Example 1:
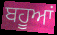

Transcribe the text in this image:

ਬਹੂਆਂ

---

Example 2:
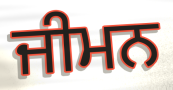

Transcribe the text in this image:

ਜੀਮਨ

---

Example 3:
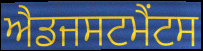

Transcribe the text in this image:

ਐਡਜਸਟਮੈਂਟਸ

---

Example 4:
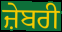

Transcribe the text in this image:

ਜ਼ੇਬਰੀ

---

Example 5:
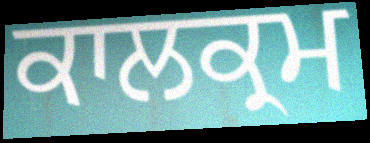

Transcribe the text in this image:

ਕਾਲਕ੍ਰਮ